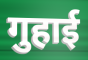
गुहाई